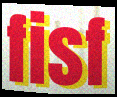
fisf